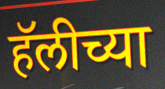
हॅलीच्या